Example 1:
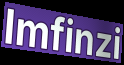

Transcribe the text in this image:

Imfinzi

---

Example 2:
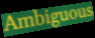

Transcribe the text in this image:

Ambiguous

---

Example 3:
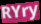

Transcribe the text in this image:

RYry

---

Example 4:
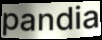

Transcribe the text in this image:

pandia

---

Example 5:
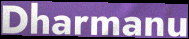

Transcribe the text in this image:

Dharmanu